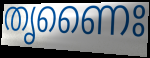
തൃണൈഃ